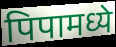
पिपामध्ये